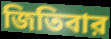
জিতিবার